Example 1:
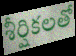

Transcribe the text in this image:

శీర్షికలతో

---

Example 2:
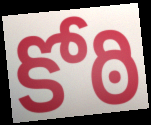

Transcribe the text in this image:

కోఠి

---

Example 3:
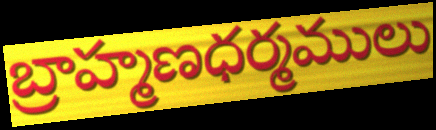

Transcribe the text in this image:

బ్రాహ్మణధర్మములు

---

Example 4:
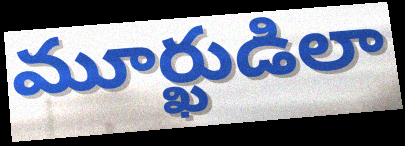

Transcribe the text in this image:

మూర్ఖుడిలా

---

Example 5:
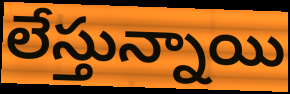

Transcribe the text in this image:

లేస్తున్నాయి